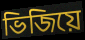
ভিজিয়ে